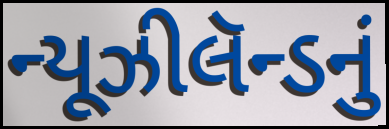
ન્યૂઝીલૅન્ડનું